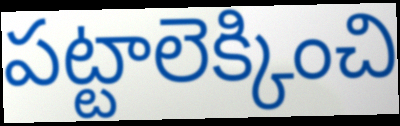
పట్టాలెక్కించి